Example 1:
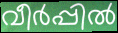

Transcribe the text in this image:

വീർപ്പിൽ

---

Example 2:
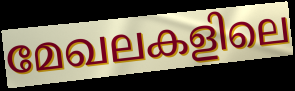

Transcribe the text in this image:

മേഖലകളിലെ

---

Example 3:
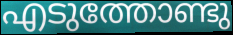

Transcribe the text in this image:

എടുത്തോണ്ടു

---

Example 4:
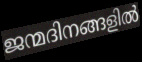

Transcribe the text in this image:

ജന്മദിനങ്ങളിൽ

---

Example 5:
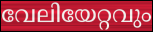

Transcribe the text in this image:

വേലിയേറ്റവും